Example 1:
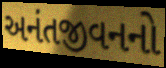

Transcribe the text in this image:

અનંતજીવનનો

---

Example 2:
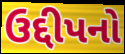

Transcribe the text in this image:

ઉદ્દીપનો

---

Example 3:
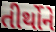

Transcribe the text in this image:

તીર્થોને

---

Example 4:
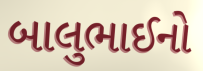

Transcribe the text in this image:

બાલુભાઈનો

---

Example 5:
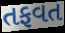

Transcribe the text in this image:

તફવત